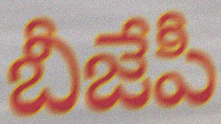
బీజేపీ